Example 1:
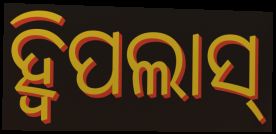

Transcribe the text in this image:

ହ୍ୱିପଲାସ୍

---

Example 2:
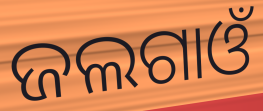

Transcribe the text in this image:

ଜଲଗାଓଁ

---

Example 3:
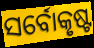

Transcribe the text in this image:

ସର୍ବୋକୃଷ୍ଟ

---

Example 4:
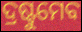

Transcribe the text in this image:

ଦ୍ରଷ୍ଟୁମେବ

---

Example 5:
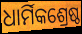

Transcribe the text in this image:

ଧାର୍ମିକଶ୍ରେଷ୍ଠ